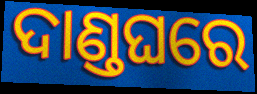
ଦାଣ୍ଡଘରେ